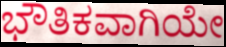
ಭೌತಿಕವಾಗಿಯೇ